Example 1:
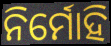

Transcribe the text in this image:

ନିର୍ମୋହି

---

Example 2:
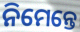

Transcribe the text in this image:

ନିମେନ୍ତେ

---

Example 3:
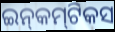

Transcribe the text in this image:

ଇନ୍‍କମ୍‍ଟିକସ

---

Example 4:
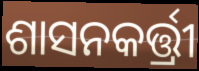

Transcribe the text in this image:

ଶାସନକର୍ତ୍ତ୍ରୀ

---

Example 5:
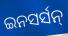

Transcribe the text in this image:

ଇନସର୍ସନ୍